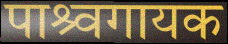
पाश्र्वगायक